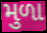
મુળા